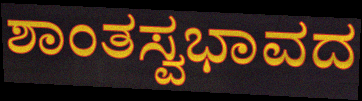
ಶಾಂತಸ್ವಭಾವದ